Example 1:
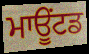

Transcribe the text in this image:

ਮਾਊਂਟਡ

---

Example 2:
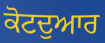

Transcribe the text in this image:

ਕੋਟਦੁਆਰ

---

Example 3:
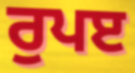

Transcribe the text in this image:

ਰੁਪੲ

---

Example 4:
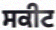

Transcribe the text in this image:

ਸਕੀਟ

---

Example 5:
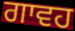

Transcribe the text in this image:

ਗਾਵਹ